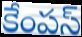
కేంపస్